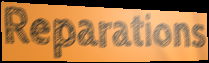
Reparations